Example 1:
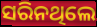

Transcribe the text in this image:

ସରିନଥିଲେ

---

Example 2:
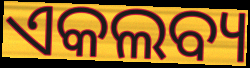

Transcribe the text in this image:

ଏକଲବ୍ୟ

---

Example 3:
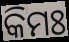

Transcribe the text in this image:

କିମଃ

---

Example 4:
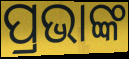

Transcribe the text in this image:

ପ୍ରଭାଙ୍କ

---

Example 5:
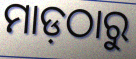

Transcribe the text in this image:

ମାଡ଼ଠାରୁ